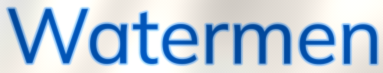
Watermen